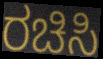
ರಚಿಸಿ